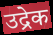
उद्रेक